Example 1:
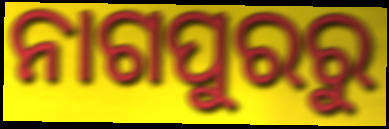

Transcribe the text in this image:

ନାଗପୁରରୁ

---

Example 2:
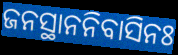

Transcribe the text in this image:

ଜନସ୍ଥାନନିବାସିନଃ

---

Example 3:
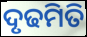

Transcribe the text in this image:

ଦୃଢମିତି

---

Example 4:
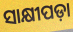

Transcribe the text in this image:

ସାକ୍ଷୀପଡ଼ା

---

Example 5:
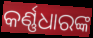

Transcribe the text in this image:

କର୍ଣ୍ଣଧାରଙ୍କ